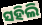
ସହିଲି